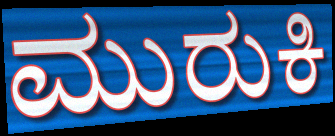
ಮುರುಕಿ